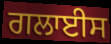
ਗਲਾਈਸ